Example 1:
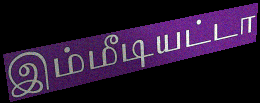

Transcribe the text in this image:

இம்மீடியட்டா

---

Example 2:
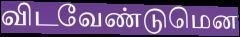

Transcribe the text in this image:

விடவேண்டுமென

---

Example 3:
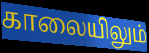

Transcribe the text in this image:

காலையிலும்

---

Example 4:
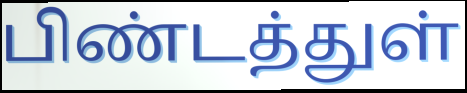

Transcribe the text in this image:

பிண்டத்துள்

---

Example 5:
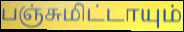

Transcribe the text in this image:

பஞ்சுமிட்டாயும்